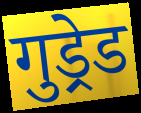
गुड्रेड